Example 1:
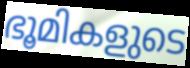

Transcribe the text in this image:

ഭൂമികളുടെ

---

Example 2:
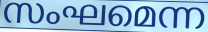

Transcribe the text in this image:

സംഘമെന്ന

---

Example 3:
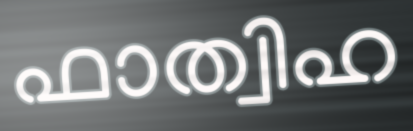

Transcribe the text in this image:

ഫാത്വിഹ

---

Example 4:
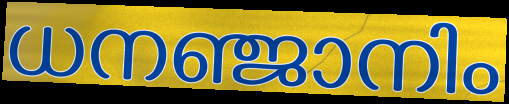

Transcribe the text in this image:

ധനഞ്ജാനിം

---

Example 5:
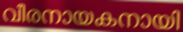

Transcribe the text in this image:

വീരനായകനായി